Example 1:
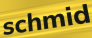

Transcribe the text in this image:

schmid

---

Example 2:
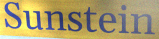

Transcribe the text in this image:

Sunstein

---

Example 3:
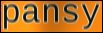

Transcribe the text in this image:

pansy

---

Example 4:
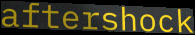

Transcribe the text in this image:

aftershock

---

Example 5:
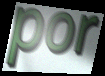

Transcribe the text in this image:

por